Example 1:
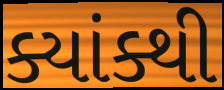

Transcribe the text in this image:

ક્યાંક્થી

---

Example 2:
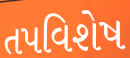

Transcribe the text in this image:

તપવિશેષ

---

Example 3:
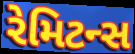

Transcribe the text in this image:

રેમિટન્સ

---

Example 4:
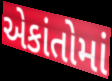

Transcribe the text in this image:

એકાંતોમાં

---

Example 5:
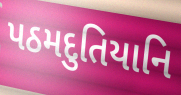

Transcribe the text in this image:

પઠમદુતિયાનિ